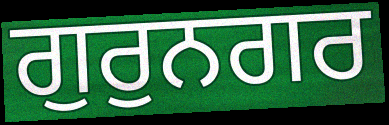
ਗੁਰੁਨਗਰ